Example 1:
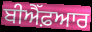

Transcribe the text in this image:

ਬੀਐੱਫ਼ਆਰ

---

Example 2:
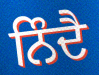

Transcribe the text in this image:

ਨਿੰਦੈ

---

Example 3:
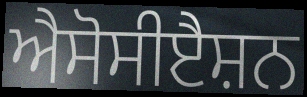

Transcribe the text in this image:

ਐਸੋਸੀੲੈਸ਼ਨ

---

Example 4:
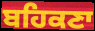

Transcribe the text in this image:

ਬਹਿਕਣਾ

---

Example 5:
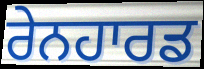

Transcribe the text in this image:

ਰੇਨਹਾਰਡ